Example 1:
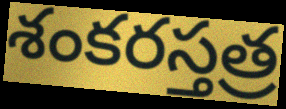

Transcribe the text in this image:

శంకరస్తత్ర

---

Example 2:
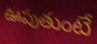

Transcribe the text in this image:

ఊపుతుంటే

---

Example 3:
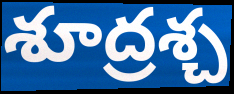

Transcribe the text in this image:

శూద్రశ్చ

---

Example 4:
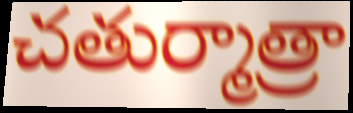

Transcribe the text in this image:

చతుర్మాత్రా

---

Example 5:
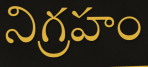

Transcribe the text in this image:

నిగ్రహం